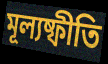
মূল্যষ্ফীতি